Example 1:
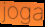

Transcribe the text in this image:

joga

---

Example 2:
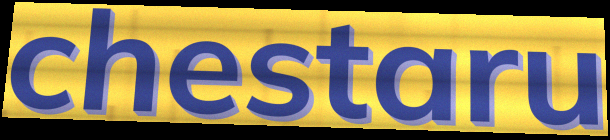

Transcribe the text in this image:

chestaru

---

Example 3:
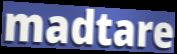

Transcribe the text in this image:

madtare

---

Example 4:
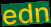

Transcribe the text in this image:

edn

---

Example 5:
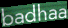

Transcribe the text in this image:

badhaa